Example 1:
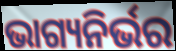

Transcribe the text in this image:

ଭାଗ୍ୟନିର୍ଭର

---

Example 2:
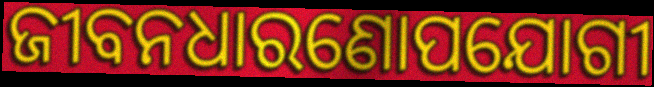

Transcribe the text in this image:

ଜୀବନଧାରଣୋପଯୋଗୀ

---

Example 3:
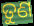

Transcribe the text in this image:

ତୁଣ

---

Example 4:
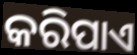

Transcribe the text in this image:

କରିପାଏ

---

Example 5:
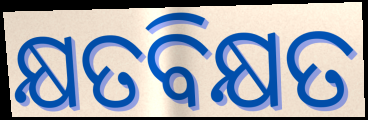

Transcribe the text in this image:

କ୍ଷତବିକ୍ଷତ